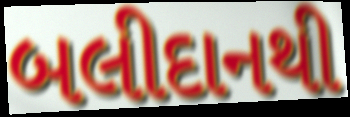
બલીદાનથી